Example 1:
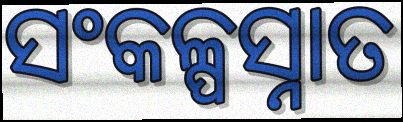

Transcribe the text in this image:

ସଂକଳ୍ପସ୍ନାତ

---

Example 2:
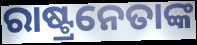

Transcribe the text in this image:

ରାଷ୍ଟ୍ରନେତାଙ୍କ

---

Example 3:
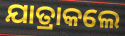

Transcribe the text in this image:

ଯାତ୍ରାକଲେ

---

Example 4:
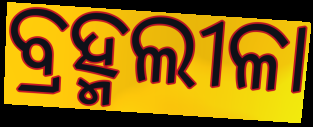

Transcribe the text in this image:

ବ୍ରହ୍ମଲୀଳା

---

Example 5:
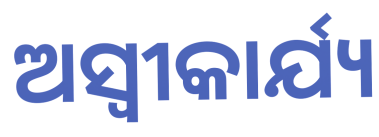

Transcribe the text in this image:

ଅସ୍ୱୀକାର୍ଯ୍ୟ